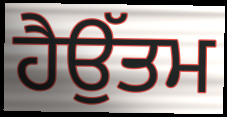
ਹੈਉੱਤਮ